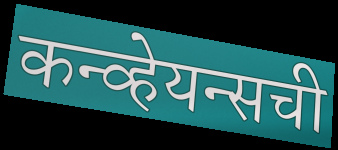
कन्व्हेयन्सची